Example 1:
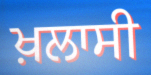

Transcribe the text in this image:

ਖ਼ਲਾਸੀ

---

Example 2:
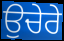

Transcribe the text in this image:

ਉਚੇਰੇ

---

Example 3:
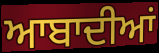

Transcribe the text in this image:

ਆਬਾਦੀਆਂ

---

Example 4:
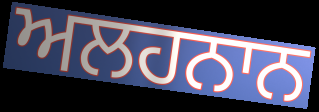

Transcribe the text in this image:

ਅਲਹਨਾਨ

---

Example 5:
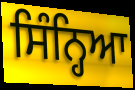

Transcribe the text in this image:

ਸਿੰਨ੍ਹਿਆ